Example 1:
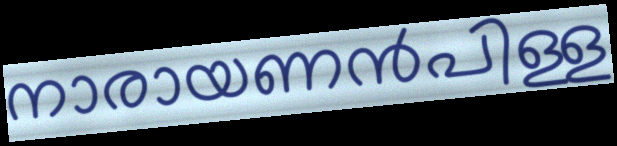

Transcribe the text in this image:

നാരായണൻപിള്ള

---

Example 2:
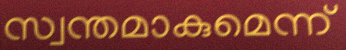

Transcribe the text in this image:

സ്വന്തമാകുമെന്ന്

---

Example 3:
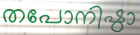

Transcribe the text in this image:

തപോനിഷ്ഠാ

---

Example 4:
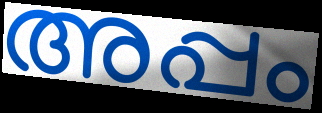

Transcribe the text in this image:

അപ്പം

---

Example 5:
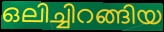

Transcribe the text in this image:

ഒലിച്ചിറങ്ങിയ